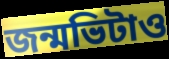
জন্মভিটাও